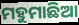
ମହୁମାଛିଆ